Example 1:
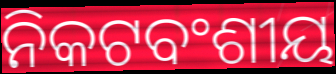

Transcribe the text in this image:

ନିକଟବଂଶୀୟ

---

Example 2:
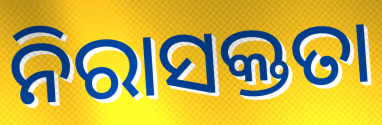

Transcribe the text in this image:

ନିରାସକ୍ତତା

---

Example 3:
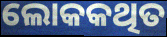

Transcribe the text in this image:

ଲୋକକଥିତ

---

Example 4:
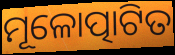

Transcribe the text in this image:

ମୂଳୋତ୍ପାଟିତ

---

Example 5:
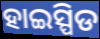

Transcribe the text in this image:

ହାଇସ୍ପିଡ